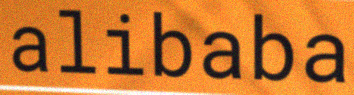
alibaba